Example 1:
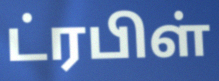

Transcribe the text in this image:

ட்ரபிள்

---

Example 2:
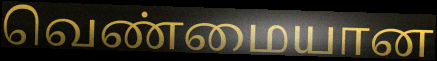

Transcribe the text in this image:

வெண்மையான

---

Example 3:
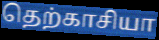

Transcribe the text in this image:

தெற்காசியா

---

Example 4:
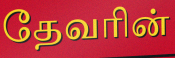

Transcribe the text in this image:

தேவரின்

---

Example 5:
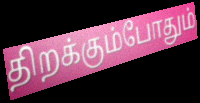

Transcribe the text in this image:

திறக்கும்போதும்